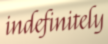
indefinitely